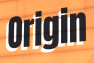
Origin